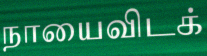
நாயைவிடக்